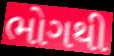
ભોગથી